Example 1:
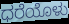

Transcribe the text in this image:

ಧರೆಯೊಳು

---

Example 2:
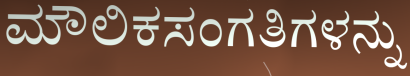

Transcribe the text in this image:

ಮೌಲಿಕಸಂಗತಿಗಳನ್ನು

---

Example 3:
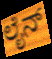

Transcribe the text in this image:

ಲೈನ್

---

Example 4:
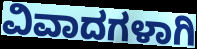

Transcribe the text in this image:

ವಿವಾದಗಳಾಗಿ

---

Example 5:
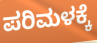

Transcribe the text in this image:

ಪರಿಮಳಕ್ಕೆ